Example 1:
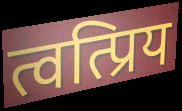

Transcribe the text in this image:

त्वत्प्रिय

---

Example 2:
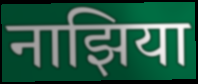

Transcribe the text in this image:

नाझिया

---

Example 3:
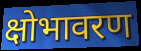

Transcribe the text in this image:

क्षोभावरण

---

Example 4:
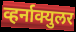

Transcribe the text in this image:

व्हर्नाक्युलर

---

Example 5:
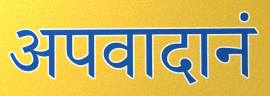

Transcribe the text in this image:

अपवादानं